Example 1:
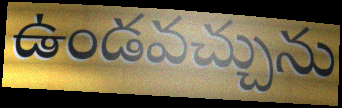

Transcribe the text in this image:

ఉండవచ్చును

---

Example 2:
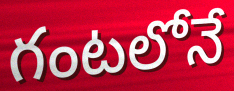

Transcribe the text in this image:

గంటలోనే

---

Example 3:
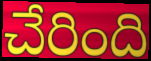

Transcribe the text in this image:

చేరింది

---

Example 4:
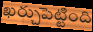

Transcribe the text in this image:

ఖర్చుపెట్టింది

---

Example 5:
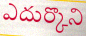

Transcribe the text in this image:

ఎదుర్కొని